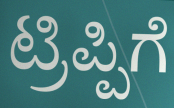
ಟ್ರಿಪ್ಪಿಗೆ